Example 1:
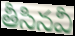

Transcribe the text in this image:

తీసినవీ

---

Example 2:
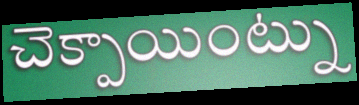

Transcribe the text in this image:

చెక్పాయింట్ను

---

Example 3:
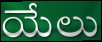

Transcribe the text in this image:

యేలు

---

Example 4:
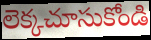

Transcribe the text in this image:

లెక్కచూసుకోండి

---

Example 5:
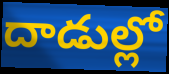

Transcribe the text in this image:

దాడుల్లో